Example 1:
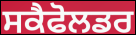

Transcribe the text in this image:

ਸਕੈਫੋਲਡਰ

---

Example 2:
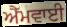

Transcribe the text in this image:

ਐੱਮਵਾਈ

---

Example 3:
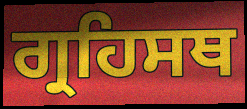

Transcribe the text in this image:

ਗ੍ਰਹਿਸਥ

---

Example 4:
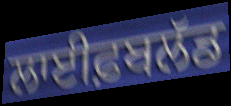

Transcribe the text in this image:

ਲਾਈਫ਼ਬਲੱਡ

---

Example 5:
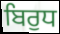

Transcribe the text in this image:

ਬਿਰੁਧ